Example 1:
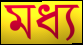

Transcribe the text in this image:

মধ্য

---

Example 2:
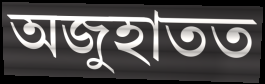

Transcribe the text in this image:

অজুহাতত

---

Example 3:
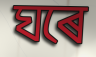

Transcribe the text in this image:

ঘৰে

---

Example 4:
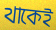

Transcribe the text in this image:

থাকেই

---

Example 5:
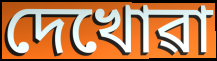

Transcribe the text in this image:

দেখোৱা